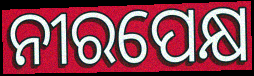
ନୀରପେକ୍ଷ